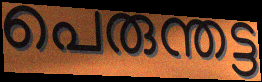
പെരുന്തട്ട